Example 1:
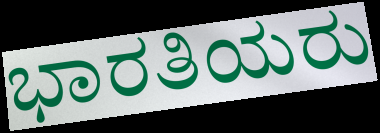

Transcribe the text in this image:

ಭಾರತಿಯರು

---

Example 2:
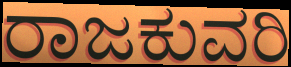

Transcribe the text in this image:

ರಾಜಕುವರಿ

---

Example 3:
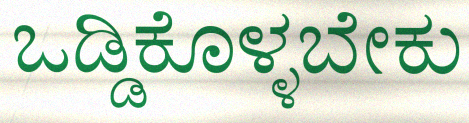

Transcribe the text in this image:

ಒಡ್ಡಿಕೊಳ್ಳಬೇಕು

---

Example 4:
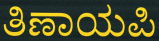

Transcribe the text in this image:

ತಿಣಾಯಪಿ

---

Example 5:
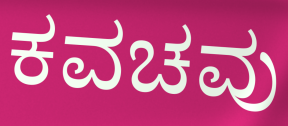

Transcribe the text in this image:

ಕವಚವು